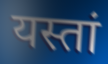
यस्तां